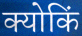
क्योकिं